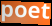
poet